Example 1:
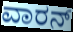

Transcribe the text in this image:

ವಾರನ್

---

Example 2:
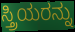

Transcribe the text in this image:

ಸ್ತ್ರಿಯರನ್ನು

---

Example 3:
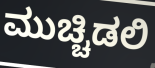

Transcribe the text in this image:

ಮುಚ್ಚಿಡಲಿ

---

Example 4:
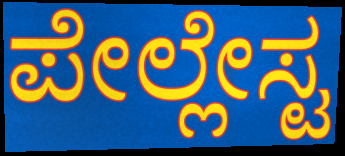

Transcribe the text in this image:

ಪೇಲ್ಲೇಸ್ಟ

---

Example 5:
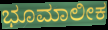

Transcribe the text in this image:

ಭೂಮಾಲೀಕ